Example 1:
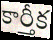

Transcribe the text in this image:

కార్తీక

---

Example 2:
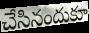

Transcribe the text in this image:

చేసినందుకూ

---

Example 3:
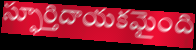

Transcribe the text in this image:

స్ఫూర్తిదాయకమైంది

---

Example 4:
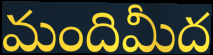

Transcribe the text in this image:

మందిమీద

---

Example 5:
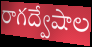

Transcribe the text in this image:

రాగద్వేషాల